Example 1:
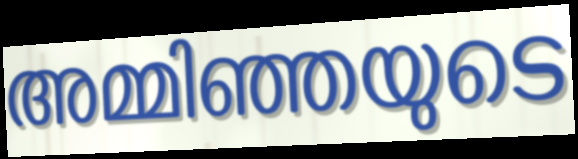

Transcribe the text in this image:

അമ്മിഞ്ഞയുടെ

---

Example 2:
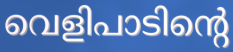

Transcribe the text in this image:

വെളിപാടിന്റെ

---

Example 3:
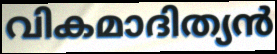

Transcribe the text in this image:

വികമാദിത്യൻ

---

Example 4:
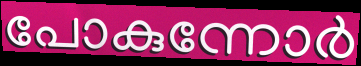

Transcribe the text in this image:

പോകുന്നോർ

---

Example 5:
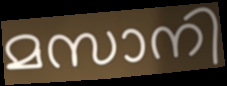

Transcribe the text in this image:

മസാനി